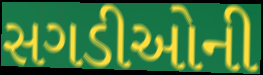
સગડીઓની